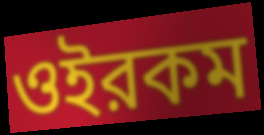
ওইরকম